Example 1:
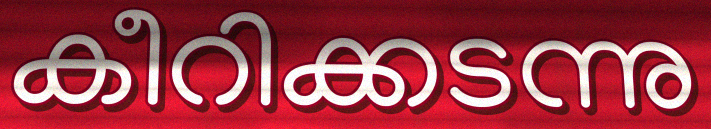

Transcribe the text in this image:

കീറിക്കടന്നു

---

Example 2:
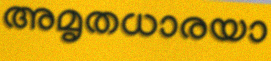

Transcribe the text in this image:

അമൃതധാരയാ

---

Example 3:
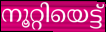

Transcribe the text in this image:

നൂറ്റിയെട്ട്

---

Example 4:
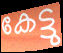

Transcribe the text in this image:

കേട്ടു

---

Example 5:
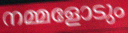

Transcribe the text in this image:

നമ്മളോടും